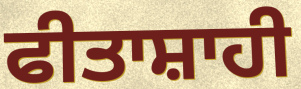
ਫੀਤਾਸ਼ਾਹੀ